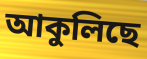
আকুলিছে